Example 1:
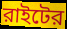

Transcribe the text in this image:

রাইটের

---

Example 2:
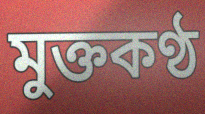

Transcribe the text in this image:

মুক্তকণ্ঠ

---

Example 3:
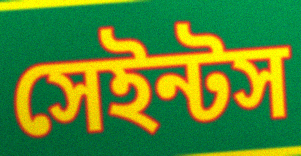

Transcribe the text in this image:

সেইন্টস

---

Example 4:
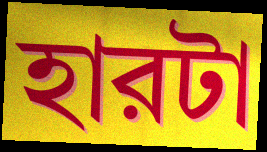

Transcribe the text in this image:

হারটা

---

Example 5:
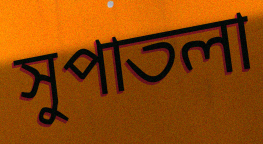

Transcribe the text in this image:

সুপাতলা